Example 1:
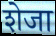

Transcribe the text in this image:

शेजा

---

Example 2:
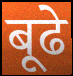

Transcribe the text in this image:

बूढे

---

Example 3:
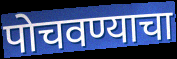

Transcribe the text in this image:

पोचवण्याचा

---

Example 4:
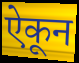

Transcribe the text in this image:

ऐकून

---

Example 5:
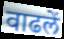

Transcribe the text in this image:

वाढलें